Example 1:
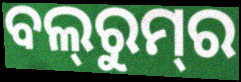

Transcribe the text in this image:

ବଲ୍‍ରୁମ୍‌ର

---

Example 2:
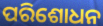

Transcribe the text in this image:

ପରିଶୋଧନ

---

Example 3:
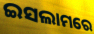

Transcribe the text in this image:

ଇସଲାମରେ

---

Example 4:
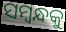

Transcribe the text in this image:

ସମ୍ବନ୍ଧକୁ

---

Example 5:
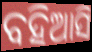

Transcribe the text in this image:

ବହିଆସି